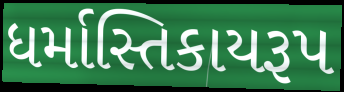
ધર્માસ્તિકાયરૂપ